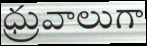
ధ్రువాలుగా